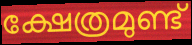
ക്ഷേത്രമുണ്ട്